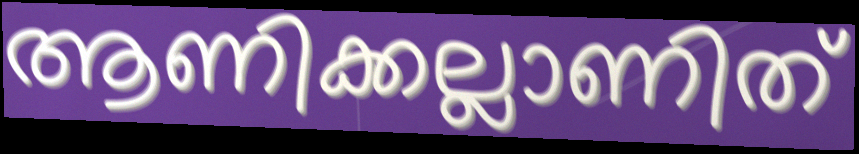
ആണിക്കല്ലാണിത്